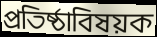
প্রতিষ্ঠাবিষয়ক